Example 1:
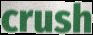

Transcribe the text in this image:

crush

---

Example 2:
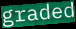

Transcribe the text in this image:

graded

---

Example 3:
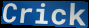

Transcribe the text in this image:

Crick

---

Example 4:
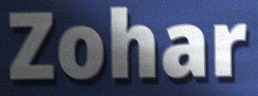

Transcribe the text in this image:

Zohar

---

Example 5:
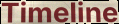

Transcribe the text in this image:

Timeline